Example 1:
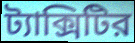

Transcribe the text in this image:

ট্যাক্সিটির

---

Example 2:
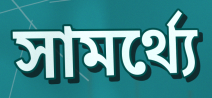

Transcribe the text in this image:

সামর্থ্যে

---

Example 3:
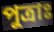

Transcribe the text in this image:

পুত্রাঃ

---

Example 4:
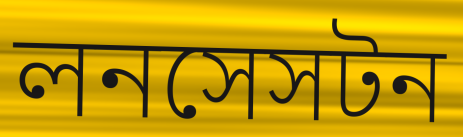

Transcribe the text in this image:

লনসেসটন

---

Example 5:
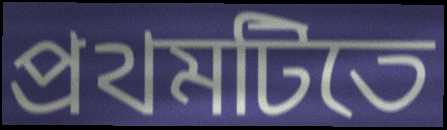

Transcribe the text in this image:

প্রথমটিতে